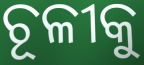
ଚୂଳୀକୁ